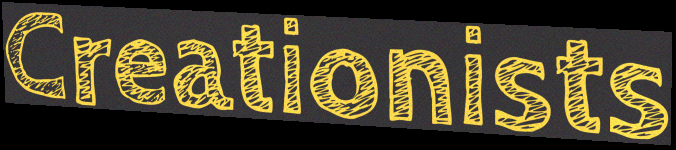
Creationists